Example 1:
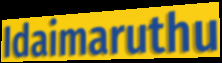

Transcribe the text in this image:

Idaimaruthu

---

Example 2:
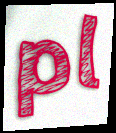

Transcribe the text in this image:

pl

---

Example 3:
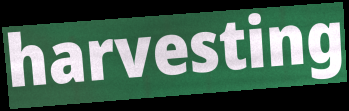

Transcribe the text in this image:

harvesting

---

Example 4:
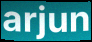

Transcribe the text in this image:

arjun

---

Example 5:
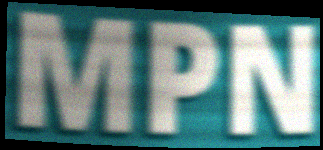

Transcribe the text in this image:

MPN